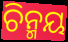
ଚିନ୍ମୟ